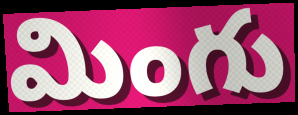
మింగు